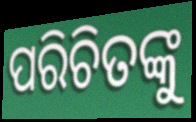
ପରିଚିତଙ୍କୁ